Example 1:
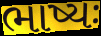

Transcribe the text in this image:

ભાષ્યઃ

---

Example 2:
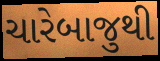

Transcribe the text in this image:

ચારેબાજુથી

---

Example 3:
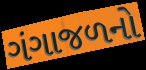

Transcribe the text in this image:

ગંગાજળનો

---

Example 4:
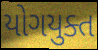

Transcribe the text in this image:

યોગયુક્ત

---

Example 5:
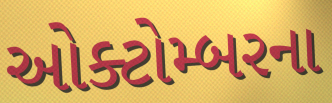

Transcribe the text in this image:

ઓક્ટોમ્બરના